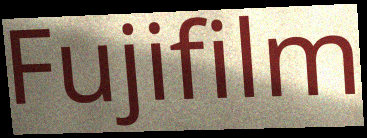
Fujifilm